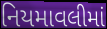
નિયમાવલીમાં